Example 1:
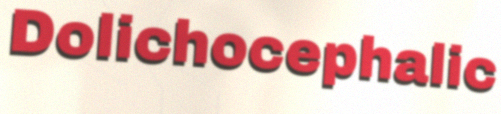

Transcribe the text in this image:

Dolichocephalic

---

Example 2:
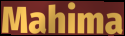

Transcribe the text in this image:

Mahima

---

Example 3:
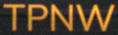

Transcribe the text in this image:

TPNW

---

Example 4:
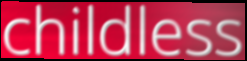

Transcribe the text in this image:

childless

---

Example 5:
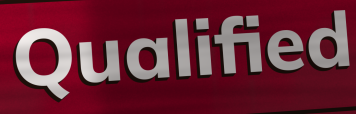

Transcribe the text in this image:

Qualified